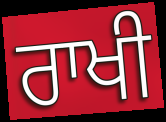
ਰਾਖੀ